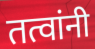
तत्वांनी